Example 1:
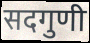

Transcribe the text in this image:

सदगुणी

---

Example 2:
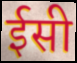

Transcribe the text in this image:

ईसी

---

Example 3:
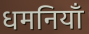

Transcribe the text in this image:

धमनियाँ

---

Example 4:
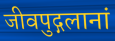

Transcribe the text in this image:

जीवपुद्गलानां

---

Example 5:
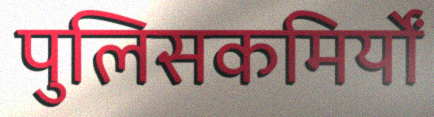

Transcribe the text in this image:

पुलिसकमिर्यों